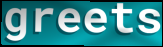
greets